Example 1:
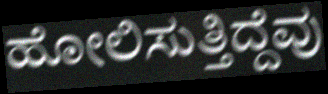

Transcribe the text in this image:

ಹೋಲಿಸುತ್ತಿದ್ದೆವು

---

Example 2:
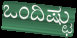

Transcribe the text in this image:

ಒಂದಿಷ್ಟು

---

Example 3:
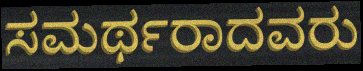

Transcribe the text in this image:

ಸಮರ್ಥರಾದವರು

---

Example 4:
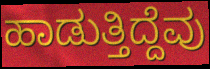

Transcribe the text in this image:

ಹಾಡುತ್ತಿದ್ದೆವು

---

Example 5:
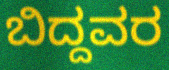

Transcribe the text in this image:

ಬಿದ್ದವರ